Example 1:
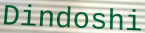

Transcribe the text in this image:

Dindoshi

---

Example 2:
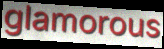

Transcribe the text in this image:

glamorous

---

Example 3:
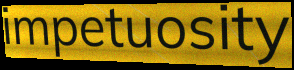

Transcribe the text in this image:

impetuosity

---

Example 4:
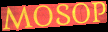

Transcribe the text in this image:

MOSOP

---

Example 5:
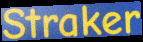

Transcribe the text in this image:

Straker